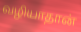
வழியாதான்